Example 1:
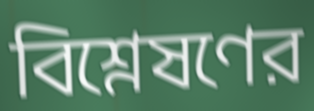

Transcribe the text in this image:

বিশ্নেষণের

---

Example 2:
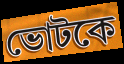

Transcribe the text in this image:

ভোটকে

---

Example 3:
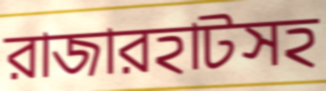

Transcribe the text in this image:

রাজারহাটসহ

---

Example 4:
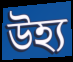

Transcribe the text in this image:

উহ্য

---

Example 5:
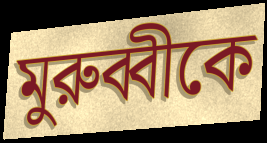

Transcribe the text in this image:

মুরুব্বীকে